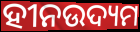
ହୀନଉଦ୍ୟମ